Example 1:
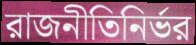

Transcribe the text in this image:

রাজনীতিনির্ভর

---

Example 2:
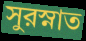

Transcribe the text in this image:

সুরস্নাত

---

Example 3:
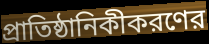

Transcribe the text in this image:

প্রাতিষ্ঠানিকীকরণের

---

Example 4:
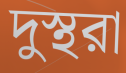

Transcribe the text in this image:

দুস্থরা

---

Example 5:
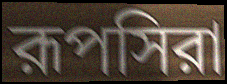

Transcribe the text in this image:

রূপসিরা